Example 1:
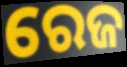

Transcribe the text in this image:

ରେଜ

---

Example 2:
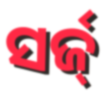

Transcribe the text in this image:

ସର୍ଜ୍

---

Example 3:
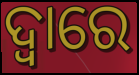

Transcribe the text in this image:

ଦ୍ବାରେ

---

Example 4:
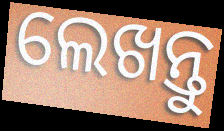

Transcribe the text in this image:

ଲେଖନ୍ତୁ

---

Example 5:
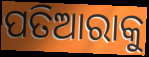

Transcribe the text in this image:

ପତିଆରାକୁ